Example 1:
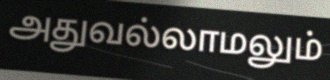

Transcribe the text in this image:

அதுவல்லாமலும்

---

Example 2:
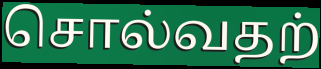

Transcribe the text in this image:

சொல்வதற்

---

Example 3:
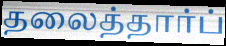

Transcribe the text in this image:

தலைத்தார்ப்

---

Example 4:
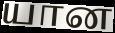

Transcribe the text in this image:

யான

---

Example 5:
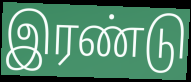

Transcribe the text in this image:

இரண்டு